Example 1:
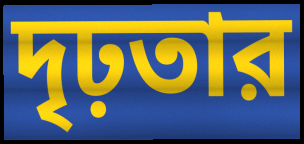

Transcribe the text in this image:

দৃঢ়তার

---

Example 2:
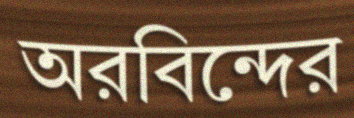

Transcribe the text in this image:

অরবিন্দের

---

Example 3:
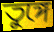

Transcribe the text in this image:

তুঙ্গে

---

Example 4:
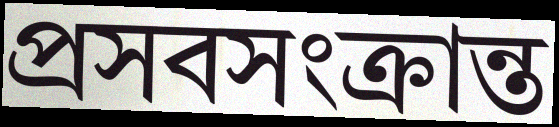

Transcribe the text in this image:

প্রসবসংক্রান্ত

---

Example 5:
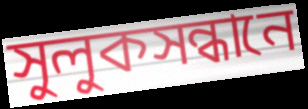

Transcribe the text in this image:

সুলুকসন্ধানে